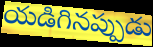
యడిగినప్పుడు